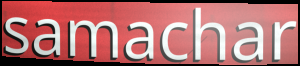
samachar